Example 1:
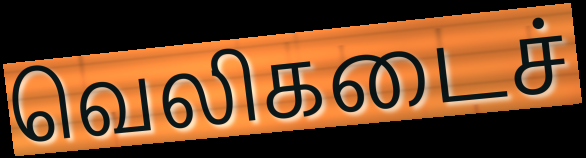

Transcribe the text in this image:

வெலிகடைச்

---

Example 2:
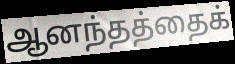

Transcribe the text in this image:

ஆனந்தத்தைக்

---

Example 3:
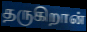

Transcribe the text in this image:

தருகிறான்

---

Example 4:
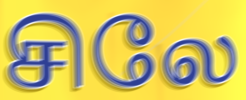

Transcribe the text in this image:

சிலே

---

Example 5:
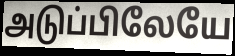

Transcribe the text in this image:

அடுப்பிலேயே